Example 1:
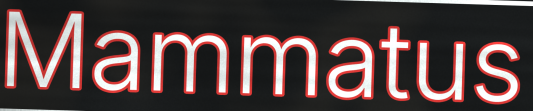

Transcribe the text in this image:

Mammatus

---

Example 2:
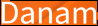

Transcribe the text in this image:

Danam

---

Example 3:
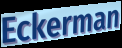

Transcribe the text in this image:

Eckerman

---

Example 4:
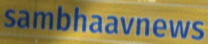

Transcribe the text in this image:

sambhaavnews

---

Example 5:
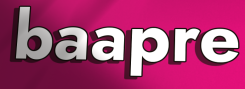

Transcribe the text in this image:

baapre